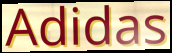
Adidas